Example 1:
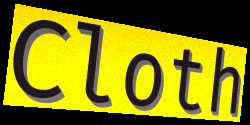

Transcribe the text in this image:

Cloth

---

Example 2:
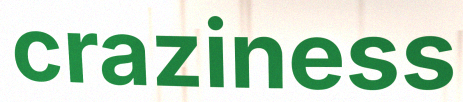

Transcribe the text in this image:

craziness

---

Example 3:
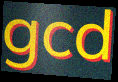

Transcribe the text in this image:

gcd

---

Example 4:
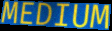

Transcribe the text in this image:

MEDIUM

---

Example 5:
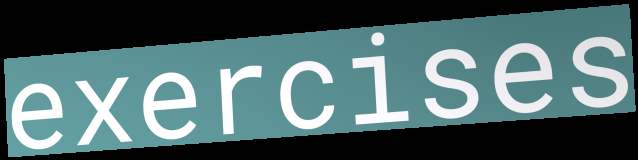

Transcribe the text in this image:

exercises